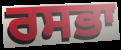
ਰਸਭਾ